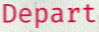
Depart